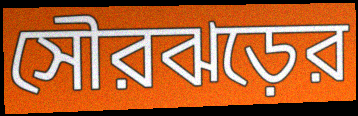
সৌরঝড়ের